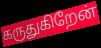
கருதுகிறேன்